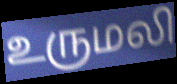
உருமலி